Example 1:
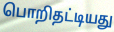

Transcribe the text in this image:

பொறிதட்டியது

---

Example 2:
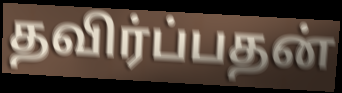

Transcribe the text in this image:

தவிர்ப்பதன்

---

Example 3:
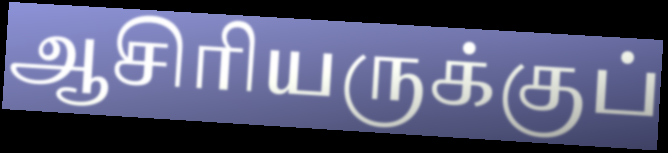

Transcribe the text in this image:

ஆசிரியருக்குப்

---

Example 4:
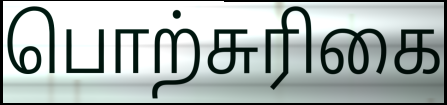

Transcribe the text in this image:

பொற்சுரிகை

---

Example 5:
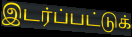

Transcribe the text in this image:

இடர்ப்பட்டுக்